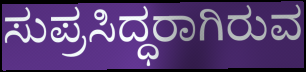
ಸುಪ್ರಸಿದ್ಧರಾಗಿರುವ